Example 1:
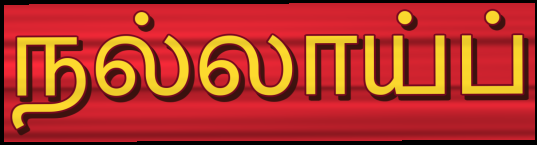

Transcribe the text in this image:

நல்லாய்ப்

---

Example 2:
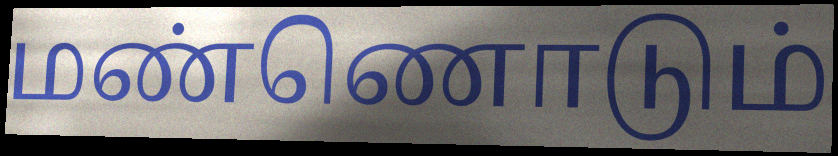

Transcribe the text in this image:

மண்ணொடும்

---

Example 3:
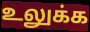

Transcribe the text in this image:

உலுக்க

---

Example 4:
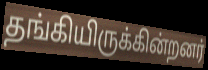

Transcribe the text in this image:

தங்கியிருக்கின்றனர்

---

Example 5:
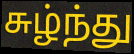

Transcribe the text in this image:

சுழ்ந்து